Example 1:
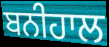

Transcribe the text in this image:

ਬਨੀਹਾਲ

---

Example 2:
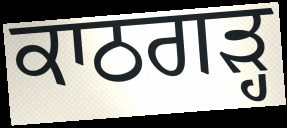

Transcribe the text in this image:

ਕਾਠਗਡ਼੍ਹ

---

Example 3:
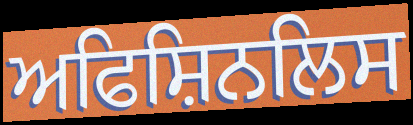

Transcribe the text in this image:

ਅਫਿਸ਼ਿਨਲਿਸ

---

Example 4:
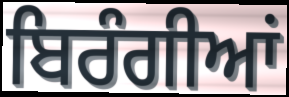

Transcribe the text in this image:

ਬਿਰੰਗੀਆਂ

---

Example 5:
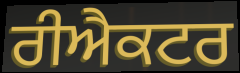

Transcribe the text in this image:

ਰੀਐਕਟਰ